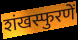
शंखस्फुरणें